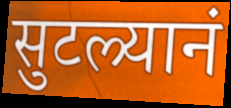
सुटल्यानं